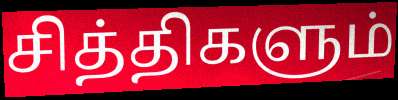
சித்திகளும்